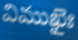
విముఖైః